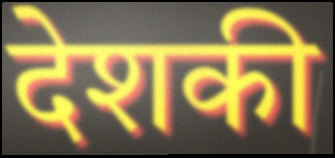
देशकी